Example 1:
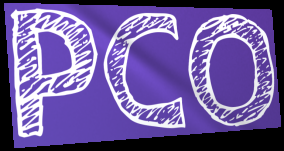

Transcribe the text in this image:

PCO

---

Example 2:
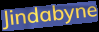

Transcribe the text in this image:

Jindabyne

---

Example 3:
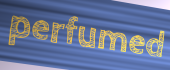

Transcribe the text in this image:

perfumed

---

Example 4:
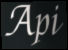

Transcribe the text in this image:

Api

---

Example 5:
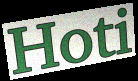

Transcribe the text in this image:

Hoti